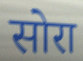
सोरा